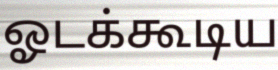
ஓடக்கூடிய